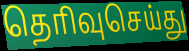
தெரிவுசெய்து